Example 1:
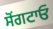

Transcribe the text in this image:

ਸੋਂਗਟਾਓ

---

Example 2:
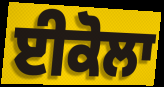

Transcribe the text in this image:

ਈਕੋਲਾ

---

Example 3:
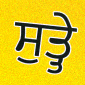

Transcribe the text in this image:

ਸੁਤ੍ਤੇ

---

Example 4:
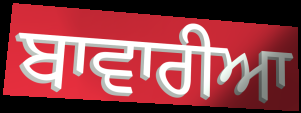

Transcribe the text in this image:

ਬਾਵਾਰੀਆ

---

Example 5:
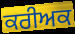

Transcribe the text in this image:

ਕਰੀਅਕ